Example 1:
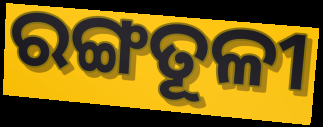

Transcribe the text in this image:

ରଙ୍ଗତୂଳୀ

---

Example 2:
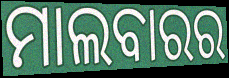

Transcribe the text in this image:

ମାଲବାରର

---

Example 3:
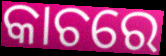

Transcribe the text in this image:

କାଚରେ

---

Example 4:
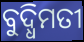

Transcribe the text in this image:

ବୁଦ୍ଧିମତୀ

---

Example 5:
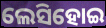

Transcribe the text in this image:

ଲେସିହୋଇ